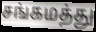
சங்கமத்து